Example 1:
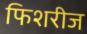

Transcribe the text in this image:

फिशरीज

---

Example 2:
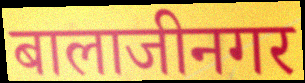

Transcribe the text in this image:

बालाजीनगर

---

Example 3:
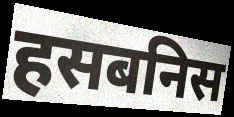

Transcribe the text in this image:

हसबनिस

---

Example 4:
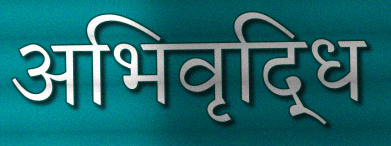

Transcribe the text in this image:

अभिवृद्धि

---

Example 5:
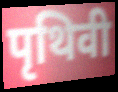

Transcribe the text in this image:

पृथिवी